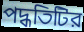
পদ্ধতিটির